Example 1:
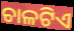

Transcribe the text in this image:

ଚାଳଟିଏ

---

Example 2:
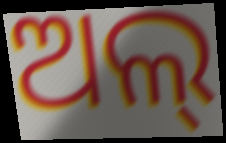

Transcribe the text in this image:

ଅଲ୍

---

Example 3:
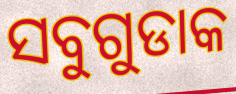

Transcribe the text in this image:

ସବୁଗୁଡାକ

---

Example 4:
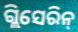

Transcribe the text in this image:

ଗ୍ଲିସେରିନ୍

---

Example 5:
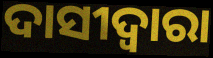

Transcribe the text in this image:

ଦାସୀଦ୍ୱାରା